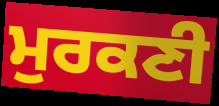
ਮੁਰਕਣੀ